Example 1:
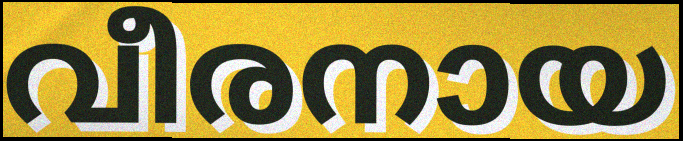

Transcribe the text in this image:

വീരനായ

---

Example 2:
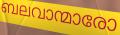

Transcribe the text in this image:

ബലവാന്മാരോ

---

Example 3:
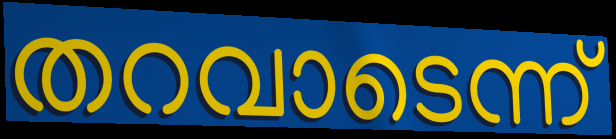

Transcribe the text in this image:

തറവാടെന്ന്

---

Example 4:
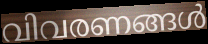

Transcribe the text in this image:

വിവരണങ്ങൾ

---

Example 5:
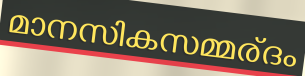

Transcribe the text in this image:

മാനസികസമ്മര്ദം